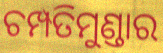
ଚମ୍ପତିମୁଣ୍ଡାର